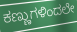
ಕಣ್ಣುಗಳಿಂದಲೇ